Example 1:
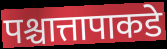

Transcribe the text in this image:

पश्चात्तापाकडे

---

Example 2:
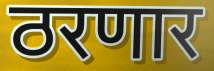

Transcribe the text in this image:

ठरणार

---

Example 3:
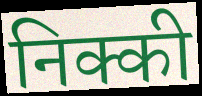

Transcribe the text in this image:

निक्की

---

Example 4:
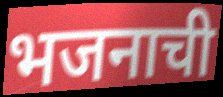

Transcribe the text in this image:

भजनाची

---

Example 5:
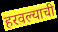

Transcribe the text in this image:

हरवल्याची